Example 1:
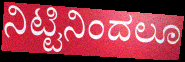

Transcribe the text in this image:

ನಿಟ್ಟಿನಿಂದಲೂ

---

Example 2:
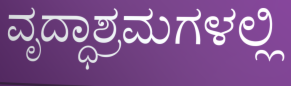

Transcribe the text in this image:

ವೃದ್ಧಾಶ್ರಮಗಳಲ್ಲಿ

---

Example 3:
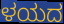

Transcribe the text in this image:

ಳಯದ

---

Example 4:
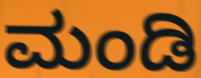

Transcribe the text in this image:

ಮಂಡಿ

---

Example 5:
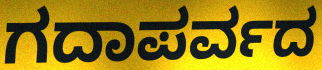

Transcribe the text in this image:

ಗದಾಪರ್ವದ